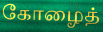
கோழைத்